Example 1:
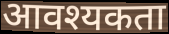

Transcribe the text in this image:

आवश्यकता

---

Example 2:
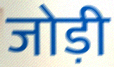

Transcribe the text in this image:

जोड़ी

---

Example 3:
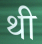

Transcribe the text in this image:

थी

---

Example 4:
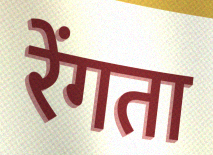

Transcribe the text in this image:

रेंगता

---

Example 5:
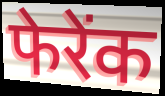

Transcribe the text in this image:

फेरेंक